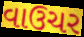
વાઉચર